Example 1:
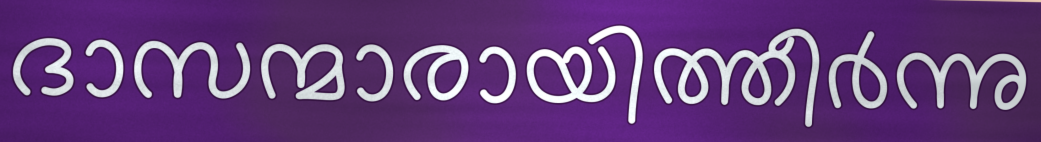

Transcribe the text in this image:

ദാസന്മാരായിത്തീർന്നു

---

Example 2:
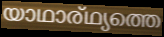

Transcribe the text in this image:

യാഥാര്ഥ്യത്തെ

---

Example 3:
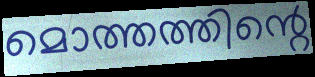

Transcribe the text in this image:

മൊത്തത്തിന്റെ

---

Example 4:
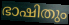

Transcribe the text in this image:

ഭാഷിതും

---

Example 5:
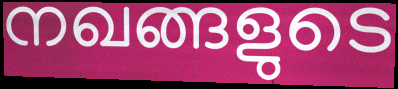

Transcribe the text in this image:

നഖങ്ങളുടെ